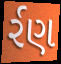
ર્રણ